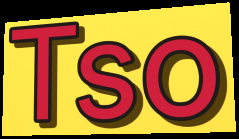
Tso